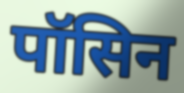
पॉसिन